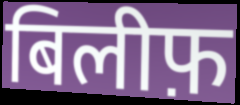
बिलीफ़